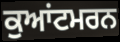
ਕੁਆਂਟਮਰਨ